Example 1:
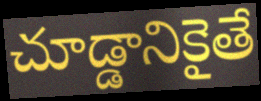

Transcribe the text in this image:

చూడ్డానికైతే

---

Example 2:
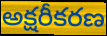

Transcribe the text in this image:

అక్షరీకరణ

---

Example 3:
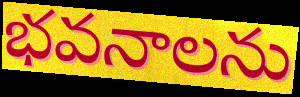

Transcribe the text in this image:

భవనాలను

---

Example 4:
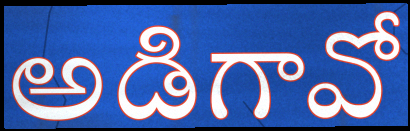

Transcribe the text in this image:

అడిగావో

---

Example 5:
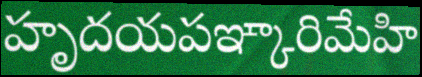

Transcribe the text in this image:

హృదయపఞ్కారిమేహి